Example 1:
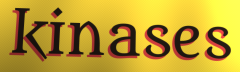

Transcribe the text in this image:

kinases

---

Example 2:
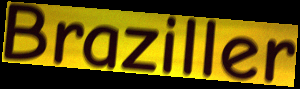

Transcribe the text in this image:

Braziller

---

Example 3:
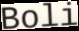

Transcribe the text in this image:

Boli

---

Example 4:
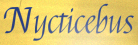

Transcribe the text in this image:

Nycticebus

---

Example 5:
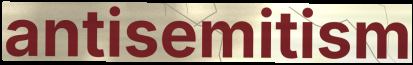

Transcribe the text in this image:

antisemitism